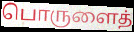
பொருளைத்